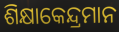
ଶିକ୍ଷାକେନ୍ଦ୍ରମାନ